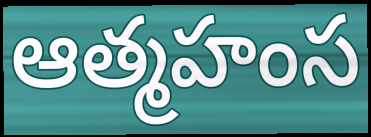
ఆత్మహంస